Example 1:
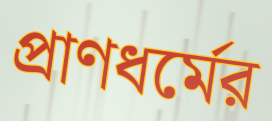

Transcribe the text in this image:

প্রাণধর্মের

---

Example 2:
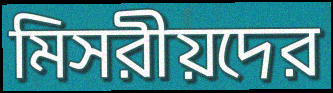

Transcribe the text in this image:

মিসরীয়দের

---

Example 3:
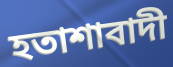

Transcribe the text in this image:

হতাশাবাদী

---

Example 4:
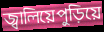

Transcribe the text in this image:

জ্বালিয়েপুড়িয়ে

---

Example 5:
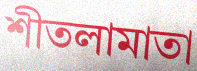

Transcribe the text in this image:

শীতলামাতা